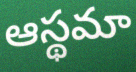
ఆస్థమా